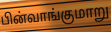
பின்வாங்குமாறு